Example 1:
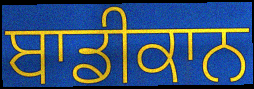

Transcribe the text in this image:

ਬਾਡੀਕਾਨ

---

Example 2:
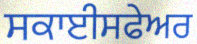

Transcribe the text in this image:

ਸਕਾਈਸਫੇਅਰ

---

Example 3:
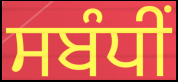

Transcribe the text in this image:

ਸਬੰਧੀਂ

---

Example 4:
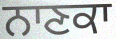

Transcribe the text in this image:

ਨਾਣਕਾ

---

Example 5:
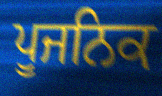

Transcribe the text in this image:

ਪੂਜਨਿਕ